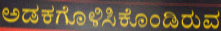
ಅಡಕಗೊಳಿಸಿಕೊಂಡಿರುವ